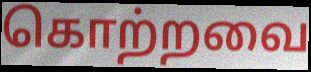
கொற்றவை